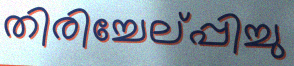
തിരിച്ചേല്പ്പിച്ചു